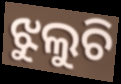
ଝୁଲୁଚି